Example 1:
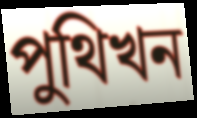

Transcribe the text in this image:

পুথিখন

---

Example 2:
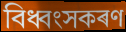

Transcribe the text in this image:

বিধ্বংসকৰণ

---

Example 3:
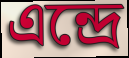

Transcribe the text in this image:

এন্দ্ৰে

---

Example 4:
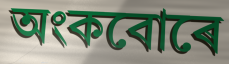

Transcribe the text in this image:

অংকবোৰে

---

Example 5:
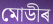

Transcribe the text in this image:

মোডীৰ